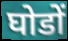
घोडों